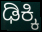
ಢಿಕ್ಕಿ